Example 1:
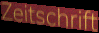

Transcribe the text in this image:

Zeitschrift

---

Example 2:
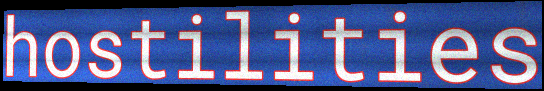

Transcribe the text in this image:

hostilities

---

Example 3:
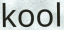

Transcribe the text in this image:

kool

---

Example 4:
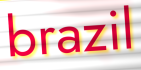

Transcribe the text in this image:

brazil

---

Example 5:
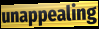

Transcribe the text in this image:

unappealing